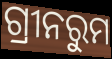
ଗ୍ରୀନରୁମ